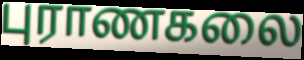
புராணகலை